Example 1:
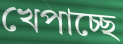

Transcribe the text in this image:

খেপাচ্ছে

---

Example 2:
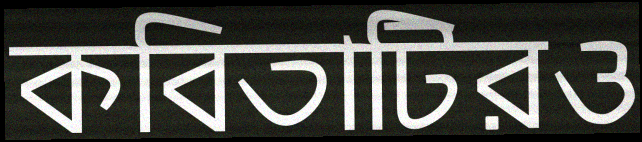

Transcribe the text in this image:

কবিতাটিরও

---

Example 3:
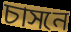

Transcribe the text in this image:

চাসনে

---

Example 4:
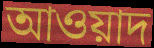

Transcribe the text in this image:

আওয়াদ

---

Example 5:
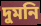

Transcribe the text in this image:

দুমনি